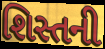
શિસ્તની